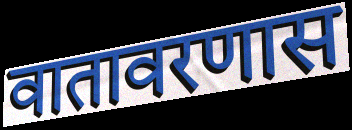
वातावरणास